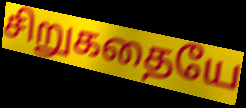
சிறுகதையே